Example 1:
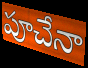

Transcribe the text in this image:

పూచేనా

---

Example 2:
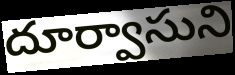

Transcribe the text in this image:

దూర్వాసుని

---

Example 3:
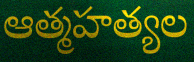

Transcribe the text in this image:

ఆత్మహత్యల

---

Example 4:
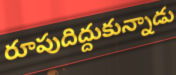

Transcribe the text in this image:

రూపుదిద్దుకున్నాడు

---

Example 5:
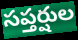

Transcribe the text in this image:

సప్తర్షుల